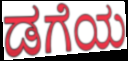
ಡಗೆಯ